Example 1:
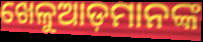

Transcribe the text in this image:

ଖେଳୁଆଡ଼ମାନଙ୍କ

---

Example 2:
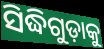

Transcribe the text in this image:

ସିଦ୍ଧିଗୁଡ଼ାକୁ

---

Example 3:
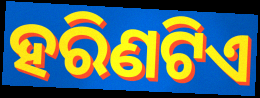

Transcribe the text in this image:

ହରିଣଟିଏ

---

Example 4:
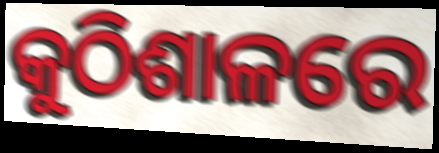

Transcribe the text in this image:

କୁଠିଶାଳରେ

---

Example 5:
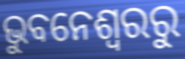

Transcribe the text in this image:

ଭୁବନେଶ୍ୱରରୁ